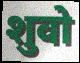
शुवो